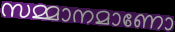
സമ്മാനമാണോ